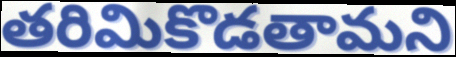
తరిమికొడతామని